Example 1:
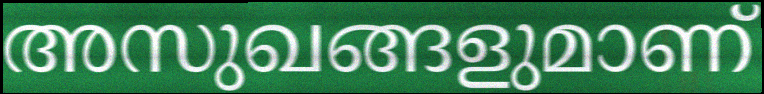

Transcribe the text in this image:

അസുഖങ്ങളുമാണ്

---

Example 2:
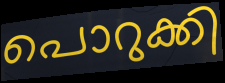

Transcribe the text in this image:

പൊറുക്കി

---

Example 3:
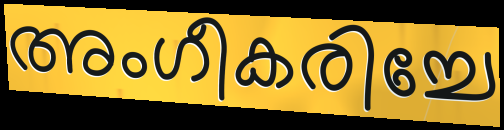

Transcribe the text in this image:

അംഗീകരിച്ചേ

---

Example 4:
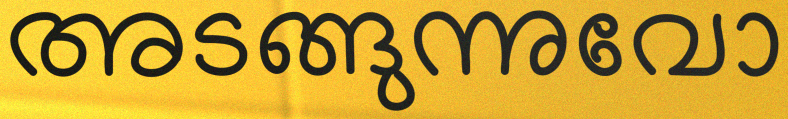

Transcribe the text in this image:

അടങ്ങുന്നുവോ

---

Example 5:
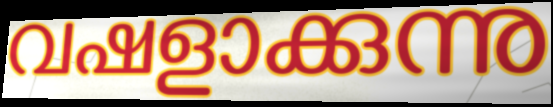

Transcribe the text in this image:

വഷളാക്കുന്നു